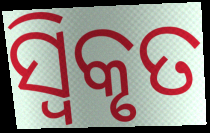
ସ୍ୱିକୃତ